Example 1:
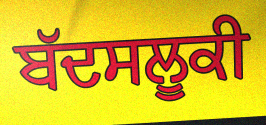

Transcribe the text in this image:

ਬੱਦਸਲੂਕੀ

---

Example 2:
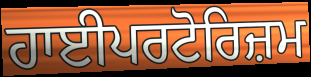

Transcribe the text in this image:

ਹਾਈਪਰਟੋਰਿਜ਼ਮ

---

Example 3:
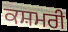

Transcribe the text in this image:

ਕਸ਼ਮਰੀ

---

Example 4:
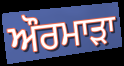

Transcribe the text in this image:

ਔਰਮਾੜਾ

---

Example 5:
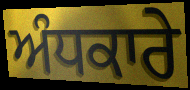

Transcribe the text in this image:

ਅੰਧਕਾਰੇ